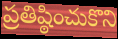
ప్రతిష్ఠించుకొని